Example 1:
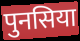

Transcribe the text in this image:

पुनसिया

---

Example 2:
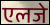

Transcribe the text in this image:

एलजे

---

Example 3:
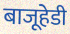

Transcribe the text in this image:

बाजूहेडी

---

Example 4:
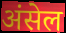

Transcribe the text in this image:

अंसेल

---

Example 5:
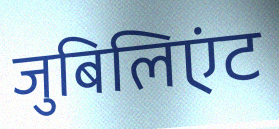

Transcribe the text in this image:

जुबिलिएंट